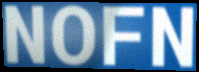
NOFN